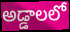
అడ్డాలలో